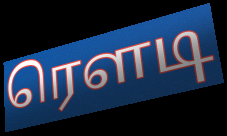
ரெளடி